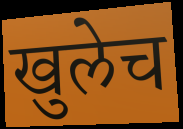
खुलेच